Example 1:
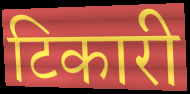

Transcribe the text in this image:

टिकारी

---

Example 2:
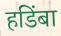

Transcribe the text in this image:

हडिंबा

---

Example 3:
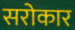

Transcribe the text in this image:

सरोकार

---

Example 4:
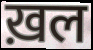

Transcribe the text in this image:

ख़ल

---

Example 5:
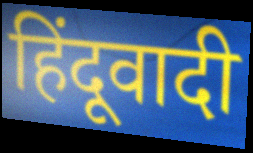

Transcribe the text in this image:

हिंदूवादी